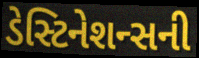
ડેસ્ટિનેશન્સની